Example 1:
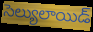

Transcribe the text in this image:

సెల్యులాయిడ్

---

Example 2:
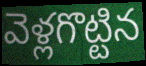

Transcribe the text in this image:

వెళ్లగొట్టిన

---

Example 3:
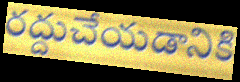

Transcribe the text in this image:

రద్దుచేయడానికి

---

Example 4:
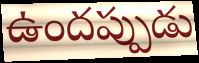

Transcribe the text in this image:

ఉందప్పుడు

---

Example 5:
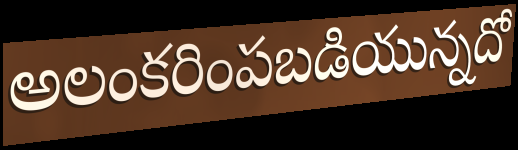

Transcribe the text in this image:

అలంకరింపబడియున్నదో